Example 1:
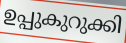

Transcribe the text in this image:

ഉപ്പുകുറുക്കി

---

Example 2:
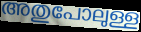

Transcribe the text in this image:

അതുപോലുള്ള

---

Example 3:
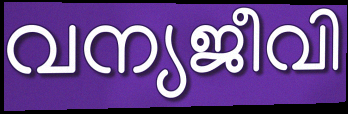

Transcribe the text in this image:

വന്യജീവി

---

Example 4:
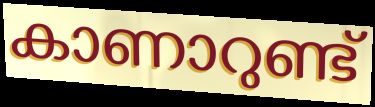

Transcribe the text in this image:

കാണാറുണ്ട്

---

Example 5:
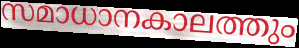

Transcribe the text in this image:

സമാധാനകാലത്തും